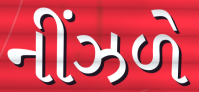
નીંઝળે